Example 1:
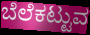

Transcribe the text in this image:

ಬೆಲೆಕಟ್ಟುವ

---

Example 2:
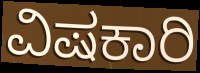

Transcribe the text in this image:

ವಿಷಕಾರಿ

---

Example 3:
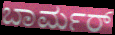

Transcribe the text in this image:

ಬಾರ್ಮರ್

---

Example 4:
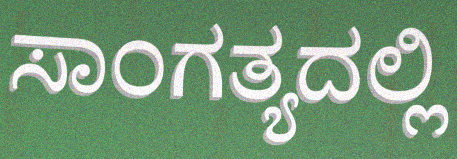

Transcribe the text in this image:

ಸಾಂಗತ್ಯದಲ್ಲಿ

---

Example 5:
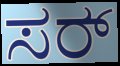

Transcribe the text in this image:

ಸರ‍್